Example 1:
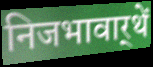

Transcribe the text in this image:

निजभावार्थें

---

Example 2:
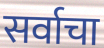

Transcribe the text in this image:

सर्वाचा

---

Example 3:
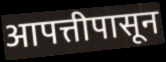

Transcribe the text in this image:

आपत्तीपासून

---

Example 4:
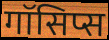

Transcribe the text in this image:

गॉसिप्स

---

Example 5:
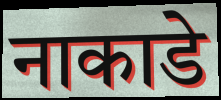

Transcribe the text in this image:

नाकाडे